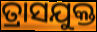
ତ୍ରାସଯୁକ୍ତ